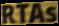
RTAs